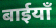
बाईयाँ